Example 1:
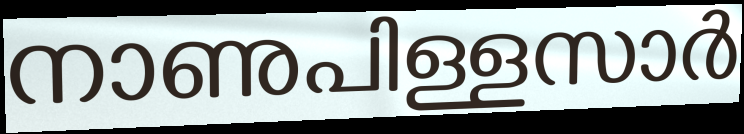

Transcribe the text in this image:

നാണുപിള്ളസാർ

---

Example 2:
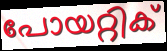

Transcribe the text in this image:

പോയറ്റിക്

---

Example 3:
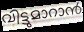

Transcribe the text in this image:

വിട്ടുമാറാൻ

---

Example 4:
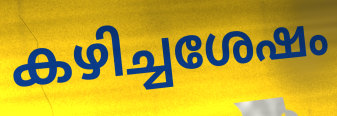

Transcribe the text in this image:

കഴിച്ചശേഷം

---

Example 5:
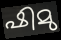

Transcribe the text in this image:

ഷിമു